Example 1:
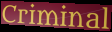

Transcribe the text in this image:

Criminal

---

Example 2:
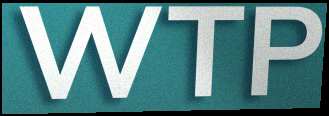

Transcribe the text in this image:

WTP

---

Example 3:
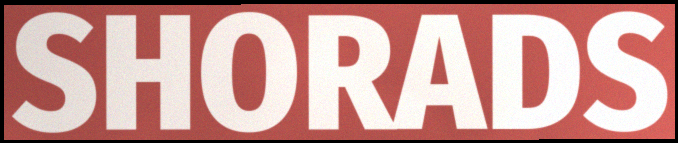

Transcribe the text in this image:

SHORADS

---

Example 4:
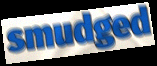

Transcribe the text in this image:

smudged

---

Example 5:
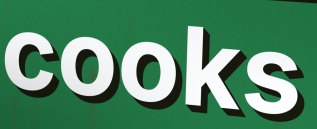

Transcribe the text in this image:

cooks